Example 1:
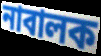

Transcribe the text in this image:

নাবালক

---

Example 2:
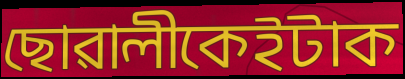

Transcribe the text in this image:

ছোৱালীকেইটাক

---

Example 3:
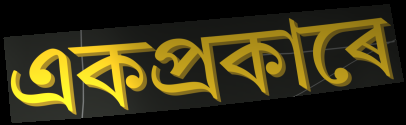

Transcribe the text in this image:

একপ্ৰকাৰে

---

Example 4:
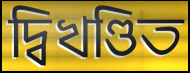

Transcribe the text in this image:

দ্বিখণ্ডিত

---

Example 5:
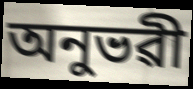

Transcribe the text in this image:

অনুভৱী